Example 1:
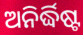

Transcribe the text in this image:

ଅନିର୍ଦ୍ଧିଷ୍ଟ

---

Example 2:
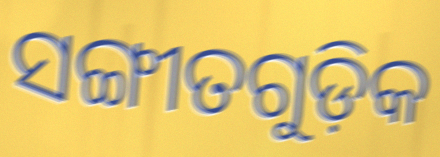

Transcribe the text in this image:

ସଙ୍ଗୀତଗୁଡ଼ିକ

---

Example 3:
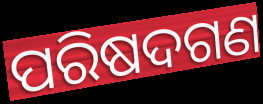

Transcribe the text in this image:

ପରିଷଦଗଣ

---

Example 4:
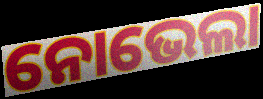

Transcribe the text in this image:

ନୋଭେଲା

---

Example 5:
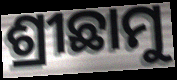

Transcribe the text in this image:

ଶ୍ରୀଛାମୁ